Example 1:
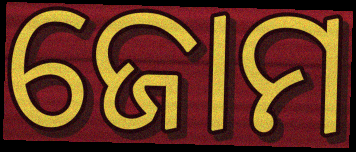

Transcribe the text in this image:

ଜୋମ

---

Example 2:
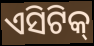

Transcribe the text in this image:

ଏସିଟିକ୍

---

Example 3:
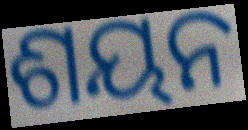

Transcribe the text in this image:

ଶୟନ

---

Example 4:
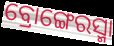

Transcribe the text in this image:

ବ୍ରୋଙ୍ଗେରସ୍ମା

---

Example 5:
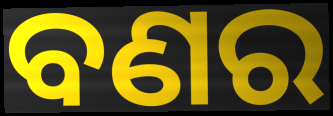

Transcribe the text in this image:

ବଣର